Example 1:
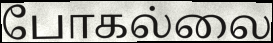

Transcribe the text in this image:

போகல்லை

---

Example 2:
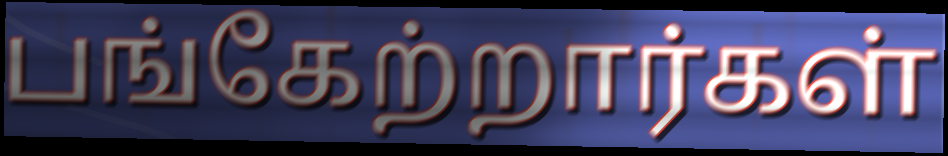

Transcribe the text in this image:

பங்கேற்றார்கள்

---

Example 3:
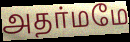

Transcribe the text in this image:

அதர்மமே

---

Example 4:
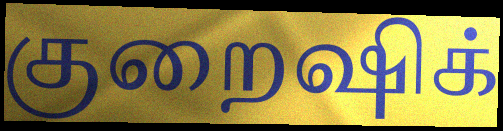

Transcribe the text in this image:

குறைஷிக்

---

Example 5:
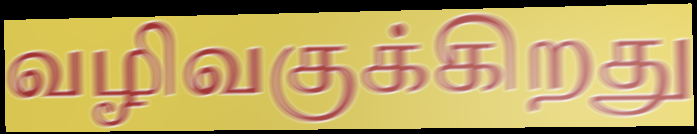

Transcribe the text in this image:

வழிவகுக்கிறது